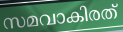
സമവാകിരത്